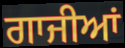
ਗਾਜੀਆਂ